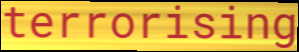
terrorising